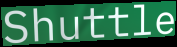
Shuttle